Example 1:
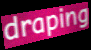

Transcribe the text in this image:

draping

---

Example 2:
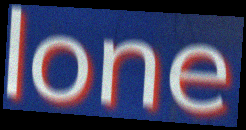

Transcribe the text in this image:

lone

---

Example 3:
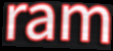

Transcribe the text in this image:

ram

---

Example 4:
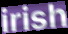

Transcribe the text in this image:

irish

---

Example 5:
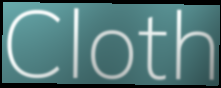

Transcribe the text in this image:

Cloth